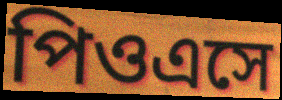
পিওএসে